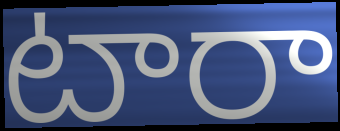
టారా